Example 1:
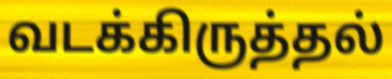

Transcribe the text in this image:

வடக்கிருத்தல்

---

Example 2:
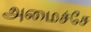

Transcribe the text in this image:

அமைச்சே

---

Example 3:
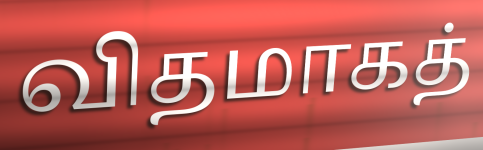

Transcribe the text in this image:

விதமாகத்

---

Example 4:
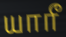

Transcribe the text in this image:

யாரீ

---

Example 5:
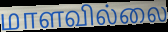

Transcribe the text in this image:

மாளவில்லை